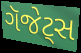
ગૅજેટ્સ